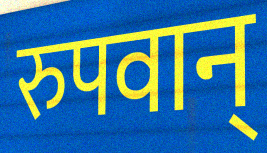
रुपवान्